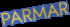
PARMAR